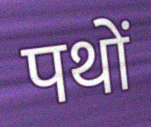
पथों